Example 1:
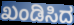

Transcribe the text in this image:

ಖಂಡಿಸಿದ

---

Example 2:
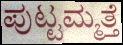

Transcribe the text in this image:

ಪುಟ್ಟಮ್ಮತ್ತೆ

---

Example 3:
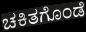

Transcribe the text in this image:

ಚಕಿತಗೊಂಡೆ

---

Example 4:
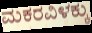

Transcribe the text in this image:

ಮಕರವಿಳಕ್ಕು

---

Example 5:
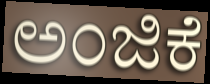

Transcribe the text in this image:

ಅಂಜಿಕೆ